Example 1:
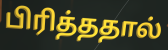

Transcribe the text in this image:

பிரித்ததால்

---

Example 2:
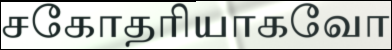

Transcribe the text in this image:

சகோதரியாகவோ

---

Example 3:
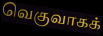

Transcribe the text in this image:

வெகுவாகக்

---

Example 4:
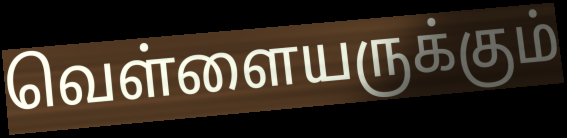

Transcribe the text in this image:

வெள்ளையருக்கும்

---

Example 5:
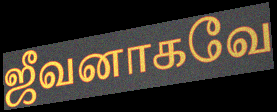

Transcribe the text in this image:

ஜீவனாகவே